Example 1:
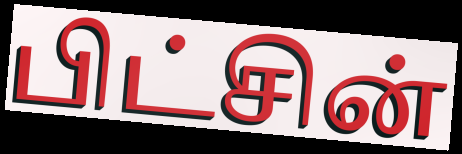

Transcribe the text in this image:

பிட்சின்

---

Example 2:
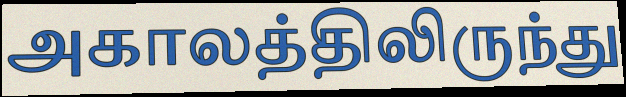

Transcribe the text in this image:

அகாலத்திலிருந்து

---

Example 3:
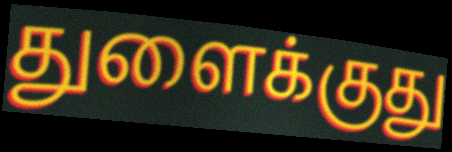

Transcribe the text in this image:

துளைக்குது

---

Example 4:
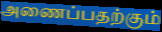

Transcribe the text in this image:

அணைப்பதற்கும்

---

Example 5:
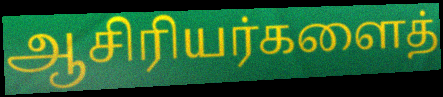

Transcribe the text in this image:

ஆசிரியர்களைத்